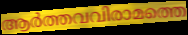
ആർത്തവവിരാമത്തെ